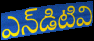
ఎన్‌డిటివి